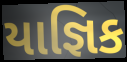
યાજ્ઞિક